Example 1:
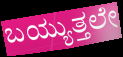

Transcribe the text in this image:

ಬಯ್ಯುತ್ತಲೇ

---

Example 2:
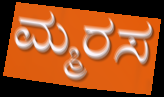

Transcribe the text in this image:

ಮ್ಮರಸ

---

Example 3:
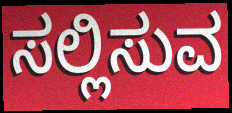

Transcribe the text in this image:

ಸಲ್ಲಿಸುವ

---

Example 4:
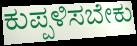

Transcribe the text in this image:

ಕುಪ್ಪಳಿಸಬೇಕು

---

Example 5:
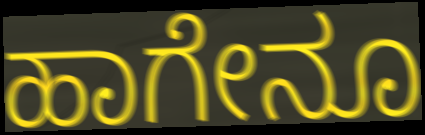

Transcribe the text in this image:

ಹಾಗೇನೂ